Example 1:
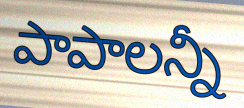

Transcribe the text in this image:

పాపాలన్నీ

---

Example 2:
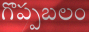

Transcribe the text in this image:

గొప్పబలం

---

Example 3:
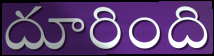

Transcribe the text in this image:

దూరింది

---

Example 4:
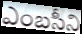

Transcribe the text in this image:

ఎంబసీని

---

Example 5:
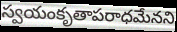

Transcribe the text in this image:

స్వయంకృతాపరాధమేనని